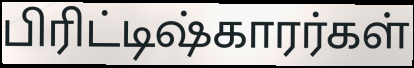
பிரிட்டிஷ்காரர்கள்